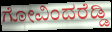
ಗೋವಿಂದರೆಡ್ಡಿ